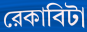
রেকাবিটা